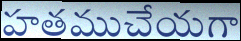
హతముచేయగా